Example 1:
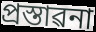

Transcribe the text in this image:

প্ৰস্তাৱনা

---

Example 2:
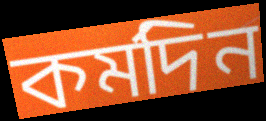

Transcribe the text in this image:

কৰ্মদিন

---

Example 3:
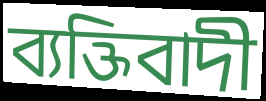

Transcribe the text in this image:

ব্যক্তিবাদী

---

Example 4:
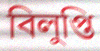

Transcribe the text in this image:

বিলুপ্তি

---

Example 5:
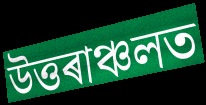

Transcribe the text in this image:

উত্তৰাঞ্চলত